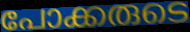
പോക്കരുടെ